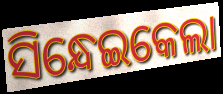
ସିନ୍ଧେଇକେଲା